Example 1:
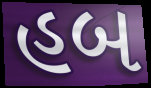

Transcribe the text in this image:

હબ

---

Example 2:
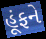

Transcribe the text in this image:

હૂંફને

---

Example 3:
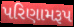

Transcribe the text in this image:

પરિણામરૂપ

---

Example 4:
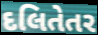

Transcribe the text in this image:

દલિતેતર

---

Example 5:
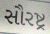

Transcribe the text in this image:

સૌરષ્ટ્ર